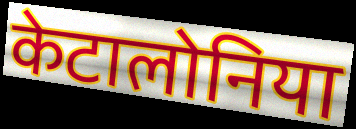
केटालोनिया